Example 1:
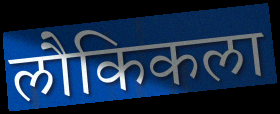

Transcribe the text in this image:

लौकिकला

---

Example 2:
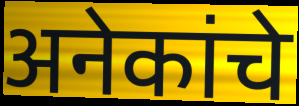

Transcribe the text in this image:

अनेकांचे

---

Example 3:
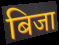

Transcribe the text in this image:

बिजा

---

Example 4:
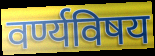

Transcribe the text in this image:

वर्ण्यविषय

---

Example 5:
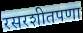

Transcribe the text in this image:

रसरशीतपणा